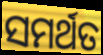
ସମର୍ଥତ